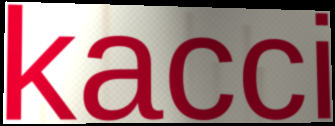
kacci